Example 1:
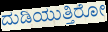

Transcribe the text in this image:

ದುಡಿಯುತ್ತಿರೋ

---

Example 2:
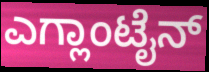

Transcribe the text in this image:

ಎಗ್ಲಾಂಟೈನ್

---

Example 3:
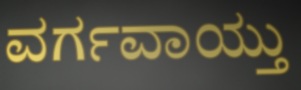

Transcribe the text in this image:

ವರ್ಗವಾಯ್ತು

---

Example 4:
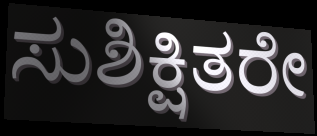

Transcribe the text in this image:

ಸುಶಿಕ್ಷಿತರೇ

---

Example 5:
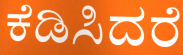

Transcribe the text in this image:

ಕೆಡಿಸಿದರೆ